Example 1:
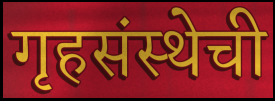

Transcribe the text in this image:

गृहसंस्थेची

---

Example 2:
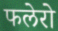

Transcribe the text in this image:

फलेरो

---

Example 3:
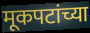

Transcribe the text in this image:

मूकपटांच्या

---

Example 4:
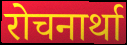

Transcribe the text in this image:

रोचनार्था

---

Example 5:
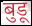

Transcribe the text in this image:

बुडू